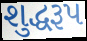
શુદ્ધરૂપ